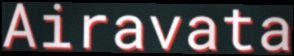
Airavata